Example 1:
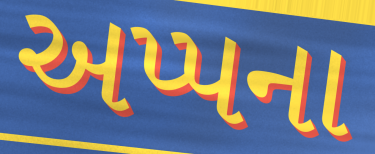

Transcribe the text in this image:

અપ્પના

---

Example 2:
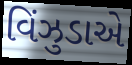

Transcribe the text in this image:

વિંઝુડાએ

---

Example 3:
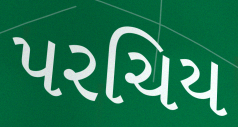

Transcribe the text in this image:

પરચિય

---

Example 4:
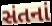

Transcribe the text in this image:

સંતનાં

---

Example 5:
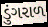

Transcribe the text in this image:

ડુંગરાળ